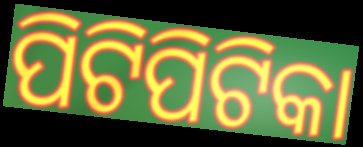
ପିଟିପିଟିକା